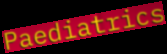
Paediatrics